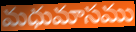
మధుమాసము